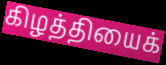
கிழத்தியைக்